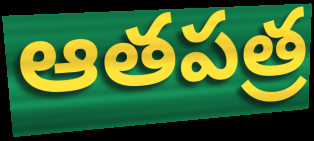
ఆతపత్ర